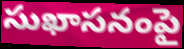
సుఖాసనంపై